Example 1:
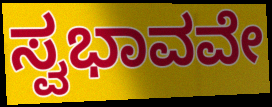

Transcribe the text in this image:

ಸ್ವಭಾವವೇ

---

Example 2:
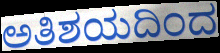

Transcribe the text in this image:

ಅತಿಶಯದಿಂದ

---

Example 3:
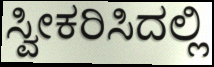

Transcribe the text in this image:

ಸ್ವೀಕರಿಸಿದಲ್ಲಿ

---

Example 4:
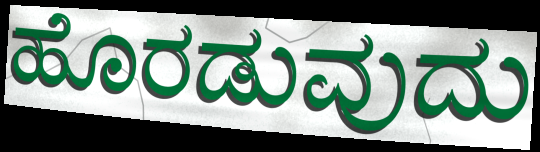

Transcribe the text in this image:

ಹೊರಡುವುದು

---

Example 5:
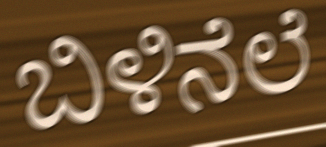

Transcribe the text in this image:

ಬಿಳಿನೆಲೆ